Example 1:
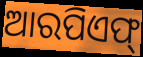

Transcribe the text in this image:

ଆରପିଏଫ୍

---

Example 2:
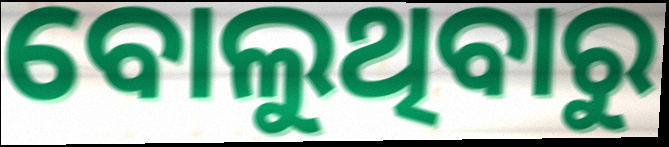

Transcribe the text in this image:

ବୋଲୁଥିବାରୁ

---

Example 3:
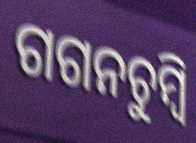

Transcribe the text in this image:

ଗଗନଚୁମ୍ବି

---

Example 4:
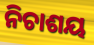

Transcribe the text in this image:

ନିଚାଶୟ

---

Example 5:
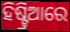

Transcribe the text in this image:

ହିଷ୍ଟ୍ରିଆରେ